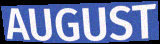
AUGUST